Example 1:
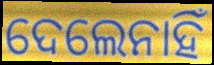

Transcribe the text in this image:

ଦେଲେନାହିଁ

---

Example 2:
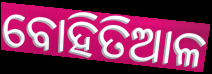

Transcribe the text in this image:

ବୋହିତିଆଳ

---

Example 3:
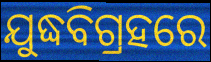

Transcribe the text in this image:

ଯୁଦ୍ଧବିଗ୍ରହରେ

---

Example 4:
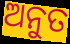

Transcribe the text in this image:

ଅନୁତ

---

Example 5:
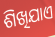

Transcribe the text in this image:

ଶିଖିଯାଏ